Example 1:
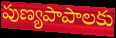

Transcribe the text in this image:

పుణ్యపాపాలకు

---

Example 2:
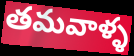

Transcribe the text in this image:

తమవాళ్ళ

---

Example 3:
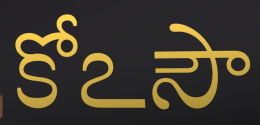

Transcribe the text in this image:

కోఽసౌ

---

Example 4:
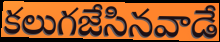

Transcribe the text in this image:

కలుగజేసినవాడే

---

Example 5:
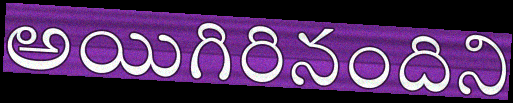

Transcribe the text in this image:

అయిగిరినందిని